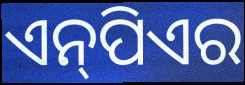
ଏନ୍‌ପିଏର